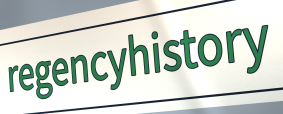
regencyhistory